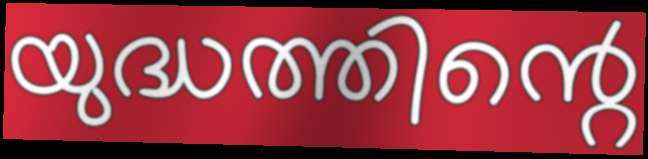
യുദ്ധത്തിന്റെ